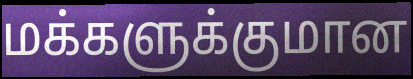
மக்களுக்குமான